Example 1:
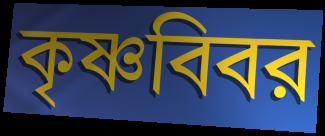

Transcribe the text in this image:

কৃষ্ণবিবর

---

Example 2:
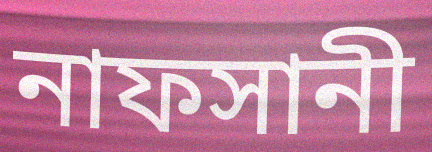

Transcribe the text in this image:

নাফসানী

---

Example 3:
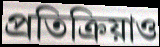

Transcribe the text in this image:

প্রতিক্রিয়াও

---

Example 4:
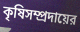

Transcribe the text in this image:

কৃষিসম্প্রদায়ের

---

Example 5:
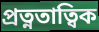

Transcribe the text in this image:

প্রত্নতাত্বিক